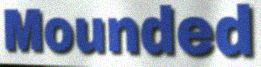
Mounded